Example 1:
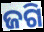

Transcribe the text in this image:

ଜଗି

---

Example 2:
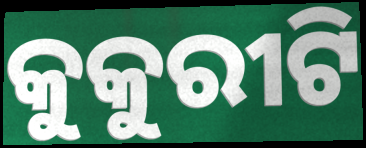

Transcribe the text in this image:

କୁକୁରୀଟି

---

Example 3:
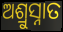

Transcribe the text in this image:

ଅଶ୍ରୁସ୍ନାତ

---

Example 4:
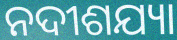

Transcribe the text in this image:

ନଦୀଶଯ୍ୟା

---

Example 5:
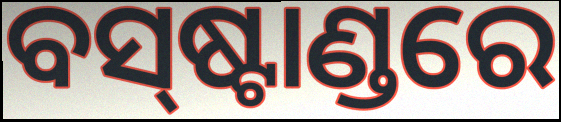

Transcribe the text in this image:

ବସ୍‌ଷ୍ଟାଣ୍ଡରେ